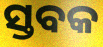
ସ୍ତବକ